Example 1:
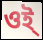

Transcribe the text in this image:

ওই্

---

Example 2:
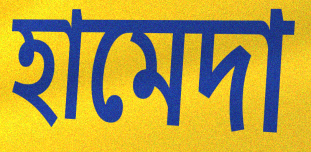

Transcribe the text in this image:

হামেদা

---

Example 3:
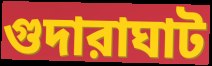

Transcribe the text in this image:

গুদারাঘাট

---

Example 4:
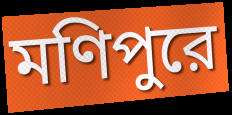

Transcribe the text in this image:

মণিপুরে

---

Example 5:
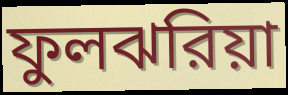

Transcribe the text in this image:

ফুলঝরিয়া